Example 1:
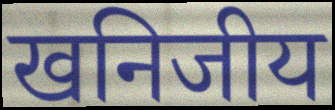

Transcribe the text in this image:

खनिजीय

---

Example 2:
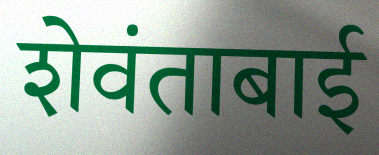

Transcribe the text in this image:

शेवंताबाई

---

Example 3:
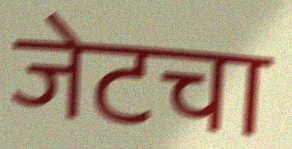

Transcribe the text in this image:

जेटचा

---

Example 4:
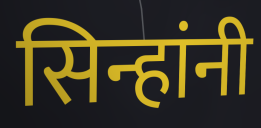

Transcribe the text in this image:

सिन्हांनी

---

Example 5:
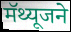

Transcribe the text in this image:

मॅथ्यूजने